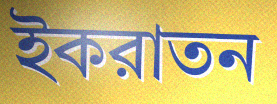
ইকরাতন